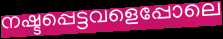
നഷ്ടപ്പെട്ടവളെപ്പോലെ